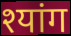
श्यांग